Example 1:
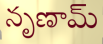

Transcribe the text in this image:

నృణామ్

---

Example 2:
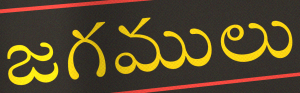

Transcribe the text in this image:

జగములు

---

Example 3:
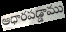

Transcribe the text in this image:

ఆధారపడ్డాము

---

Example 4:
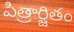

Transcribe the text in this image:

పిత్రార్జితం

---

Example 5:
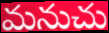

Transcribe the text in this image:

మనుచు